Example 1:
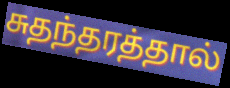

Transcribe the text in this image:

சுதந்தரத்தால்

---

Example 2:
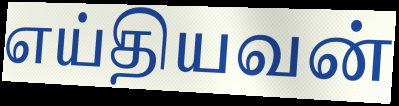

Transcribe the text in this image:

எய்தியவன்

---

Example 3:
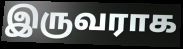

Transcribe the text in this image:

இருவராக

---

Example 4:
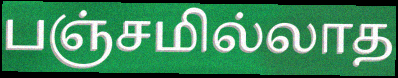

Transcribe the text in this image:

பஞ்சமில்லாத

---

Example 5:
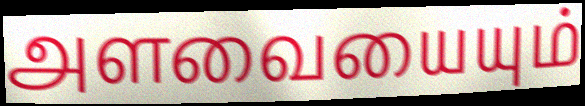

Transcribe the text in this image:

அளவையையும்